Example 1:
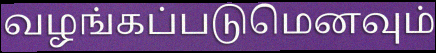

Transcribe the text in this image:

வழங்கப்படுமெனவும்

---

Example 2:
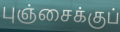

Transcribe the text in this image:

புஞ்சைக்குப்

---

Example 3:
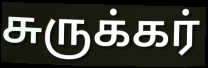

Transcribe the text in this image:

சுருக்கர்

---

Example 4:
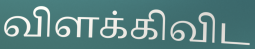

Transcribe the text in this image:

விளக்கிவிட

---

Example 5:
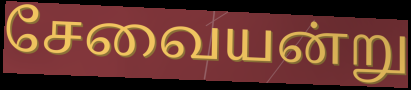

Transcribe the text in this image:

சேவையன்று